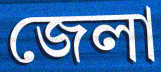
জেলা